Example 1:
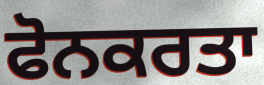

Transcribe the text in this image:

ਫੋਨਕਰਤਾ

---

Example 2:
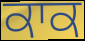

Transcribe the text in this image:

ਕਾਕ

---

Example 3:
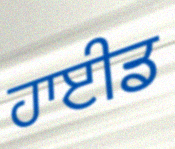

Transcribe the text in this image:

ਹਾਈਡ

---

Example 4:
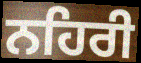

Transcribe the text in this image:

ਨਹਿਰੀ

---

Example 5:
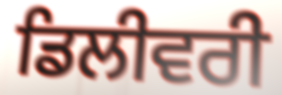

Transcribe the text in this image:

ਡਿਲੀਵਰੀ